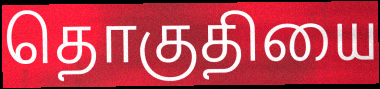
தொகுதியை